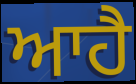
ਆਹੈ